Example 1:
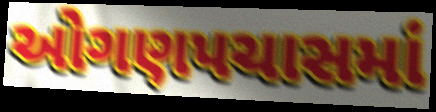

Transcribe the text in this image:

ઓગણપચાસમાં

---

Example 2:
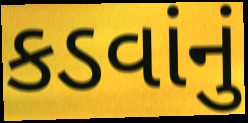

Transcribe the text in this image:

કડવાંનું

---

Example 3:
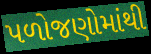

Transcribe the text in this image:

પળોજણોમાંથી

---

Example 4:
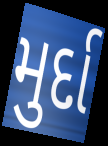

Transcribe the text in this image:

મુર્દા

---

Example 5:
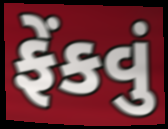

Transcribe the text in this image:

ફેંકવું